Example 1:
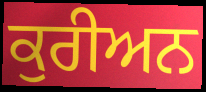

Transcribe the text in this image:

ਕੁਰੀਅਨ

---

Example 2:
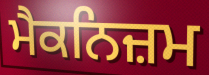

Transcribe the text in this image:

ਮੈਕਨਿਜ਼ਮ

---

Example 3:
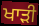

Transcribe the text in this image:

ਖਾੜੀ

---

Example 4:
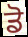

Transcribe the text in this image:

ਡੋ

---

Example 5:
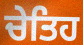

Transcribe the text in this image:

ਚੇਤਿਹ